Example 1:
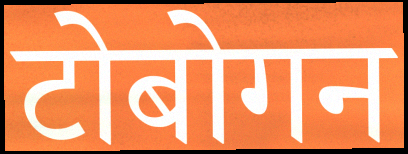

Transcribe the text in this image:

टोबोगन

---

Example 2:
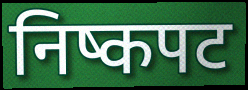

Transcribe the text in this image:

निष्कपट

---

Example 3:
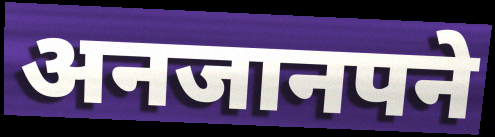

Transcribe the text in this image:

अनजानपने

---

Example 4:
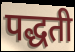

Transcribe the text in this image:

पद्धती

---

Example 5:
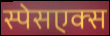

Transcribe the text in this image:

स्‍पेसएक्‍स